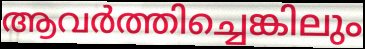
ആവർത്തിച്ചെങ്കിലും